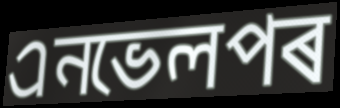
এনভেলপৰ